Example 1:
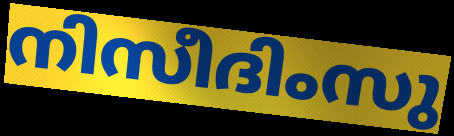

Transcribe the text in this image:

നിസീദിംസു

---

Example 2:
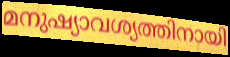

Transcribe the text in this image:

മനുഷ്യാവശ്യത്തിനായി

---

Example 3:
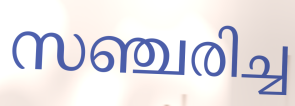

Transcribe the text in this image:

സഞ്ചരിച്ച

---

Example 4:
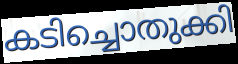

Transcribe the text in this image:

കടിച്ചൊതുക്കി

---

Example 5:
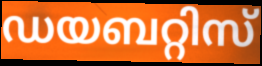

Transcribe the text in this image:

ഡയബറ്റിസ്